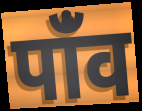
पांँव